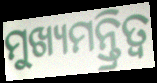
ମୁଖ୍ୟମନ୍ତ୍ରିତ୍ୱ